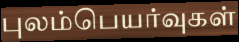
புலம்பெயர்வுகள்